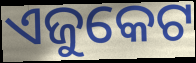
ଏଜୁକେଟ